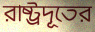
রাষ্ট্রদূতের